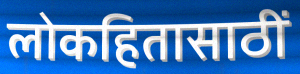
लोकहितासाठीं